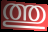
ത്തു